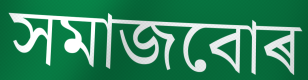
সমাজবোৰ